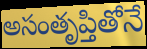
అసంతృప్తితోనే